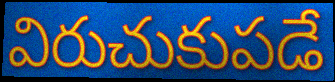
విరుచుకుపడే